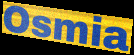
Osmia